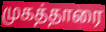
முகத்தாரை